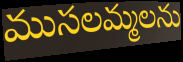
ముసలమ్మలను